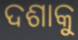
ଦଶାକୁ